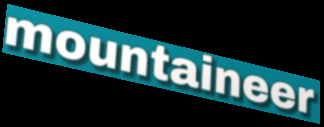
mountaineer